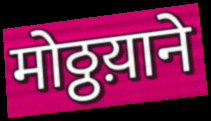
मोठ्ठय़ाने